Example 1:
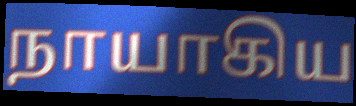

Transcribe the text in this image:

நாயாகிய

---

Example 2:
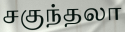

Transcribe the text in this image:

சகுந்தலா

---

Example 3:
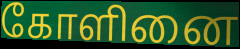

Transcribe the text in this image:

கோளினை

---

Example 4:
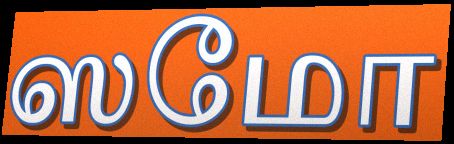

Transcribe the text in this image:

ஸமோ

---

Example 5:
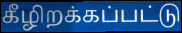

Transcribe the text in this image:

கீழிறக்கப்பட்டு